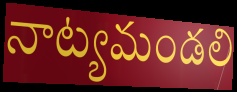
నాట్యమండలి